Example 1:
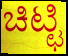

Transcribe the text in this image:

ಚಿಟ್ಟಿ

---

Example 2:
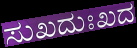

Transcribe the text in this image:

ಸುಖದುಃಖದ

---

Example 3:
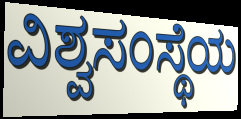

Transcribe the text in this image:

ವಿಶ್ವಸಂಸ್ಥೆಯ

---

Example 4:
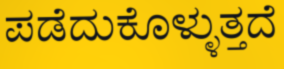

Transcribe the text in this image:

ಪಡೆದುಕೊಳ್ಳುತ್ತದೆ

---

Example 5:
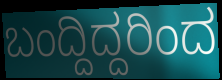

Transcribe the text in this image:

ಬಂದ್ದಿದ್ದರಿಂದ